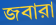
জবারা